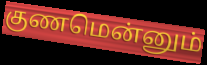
குணமென்னும்